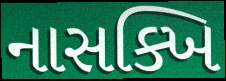
નાસક્ખિ